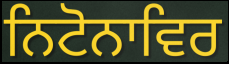
ਨਿਟੋਨਾਵਿਰ